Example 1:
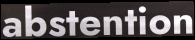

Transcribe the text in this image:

abstention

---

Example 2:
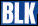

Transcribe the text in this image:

BLK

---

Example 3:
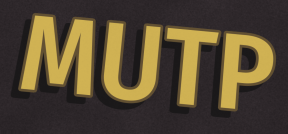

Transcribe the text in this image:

MUTP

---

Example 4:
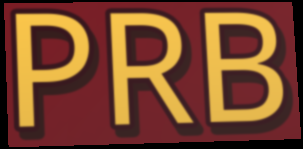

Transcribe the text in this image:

PRB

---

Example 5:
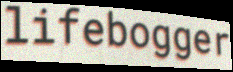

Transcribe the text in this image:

lifebogger